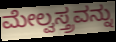
ಮೇಲ್ವಸ್ತ್ರವನ್ನು